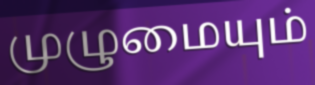
முழுமையும்